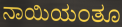
ನಾಯಿಯಂತೂ